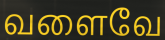
வளைவே